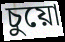
চুয়ো